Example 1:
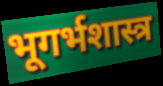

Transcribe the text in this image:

भूगर्भशास्त्र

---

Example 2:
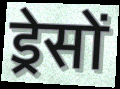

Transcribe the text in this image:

ड्रेसों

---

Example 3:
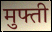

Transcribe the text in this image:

मुफ्ती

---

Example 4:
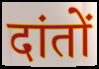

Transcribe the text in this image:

दांतों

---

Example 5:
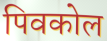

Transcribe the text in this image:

पिवकोल